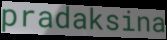
pradaksina